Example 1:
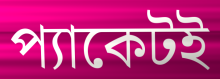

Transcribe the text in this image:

প্যাকেটই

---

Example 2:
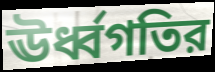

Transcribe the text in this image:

ঊর্ধ্বগতির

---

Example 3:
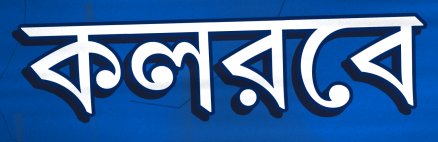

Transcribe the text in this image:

কলরবে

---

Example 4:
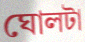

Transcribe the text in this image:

ঘোলটা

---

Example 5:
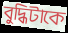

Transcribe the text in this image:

বুদ্ধিটাকে